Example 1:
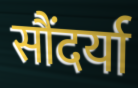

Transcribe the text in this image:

सौंदर्या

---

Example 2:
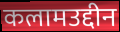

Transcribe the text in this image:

कलामउद्दीन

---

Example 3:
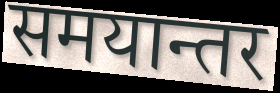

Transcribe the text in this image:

समयान्तर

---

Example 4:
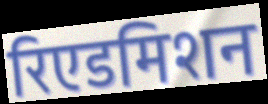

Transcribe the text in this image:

रिएडमिशन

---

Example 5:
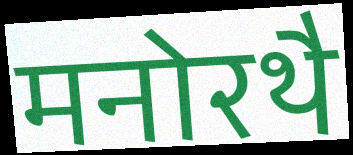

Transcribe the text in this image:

मनोरथै